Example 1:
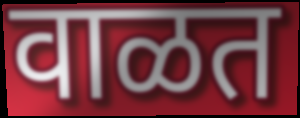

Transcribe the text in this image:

वाळत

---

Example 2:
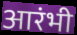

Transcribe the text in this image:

आरंभी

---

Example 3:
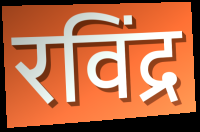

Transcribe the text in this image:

रविंद्र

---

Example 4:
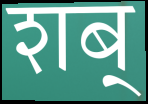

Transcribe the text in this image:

शब्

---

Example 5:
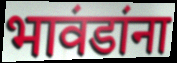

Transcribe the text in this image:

भावंडांना